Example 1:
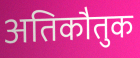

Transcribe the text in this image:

अतिकौतुक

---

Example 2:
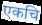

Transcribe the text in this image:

एकचि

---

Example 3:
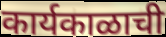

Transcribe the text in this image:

कार्यकाळाची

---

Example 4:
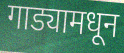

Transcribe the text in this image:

गाड्यामधून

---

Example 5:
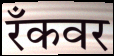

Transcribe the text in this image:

रँकवर